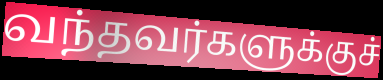
வந்தவர்களுக்குச்